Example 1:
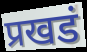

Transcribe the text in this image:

प्रखडं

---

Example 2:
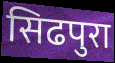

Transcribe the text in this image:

सिढपुरा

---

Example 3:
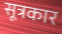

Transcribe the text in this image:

सूत्रकार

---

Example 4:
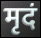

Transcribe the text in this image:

मृदं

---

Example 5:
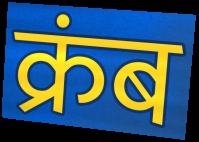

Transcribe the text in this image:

क्रंब